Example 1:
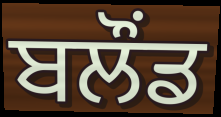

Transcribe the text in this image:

ਬਲੌਂਡ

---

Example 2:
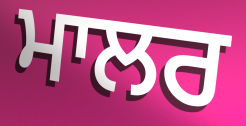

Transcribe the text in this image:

ਮਾਲਰ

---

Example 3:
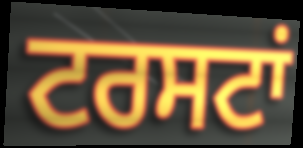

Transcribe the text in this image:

ਟਰਸਟਾਂ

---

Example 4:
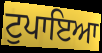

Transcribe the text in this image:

ਟੁਪਾਇਆ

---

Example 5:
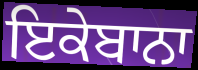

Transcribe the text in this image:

ਇਕੇਬਾਨਾ